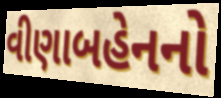
વીણાબહેનનો